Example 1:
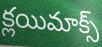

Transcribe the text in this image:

క్లయిమాక్స్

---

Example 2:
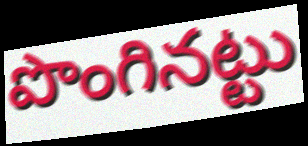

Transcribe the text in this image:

పొంగినట్టు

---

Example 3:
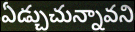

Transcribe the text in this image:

ఏడ్చుచున్నావని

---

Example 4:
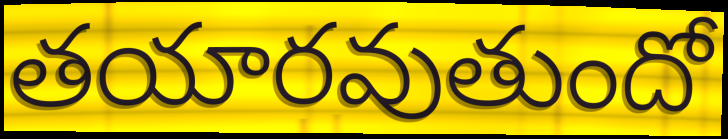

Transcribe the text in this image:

తయారవుతుందో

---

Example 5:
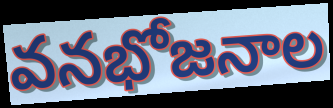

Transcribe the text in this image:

వనభోజనాల